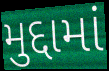
મુદ્દામાં